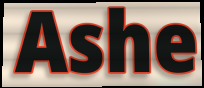
Ashe